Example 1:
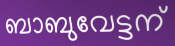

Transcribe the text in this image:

ബാബുവേട്ടന്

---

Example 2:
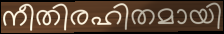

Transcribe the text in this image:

നീതിരഹിതമായി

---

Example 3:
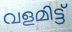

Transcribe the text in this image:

വളമിട്ട്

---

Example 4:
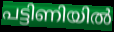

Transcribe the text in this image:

പട്ടിണിയിൽ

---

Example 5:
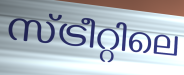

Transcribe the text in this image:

സ്ട്രീറ്റിലെ